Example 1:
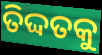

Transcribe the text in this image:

ତିଦ୍ଦତକୁ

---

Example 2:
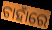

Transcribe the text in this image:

ଚାହାଁରେ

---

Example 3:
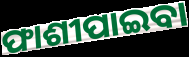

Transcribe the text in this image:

ଫାଶୀପାଇବା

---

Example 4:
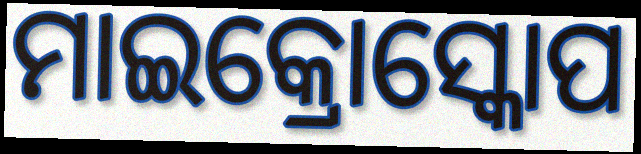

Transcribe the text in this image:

ମାଇକ୍ରୋସ୍କୋପ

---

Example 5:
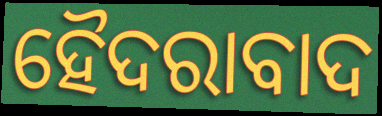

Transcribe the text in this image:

ହୈଦରାବାଦ